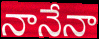
నానేనా